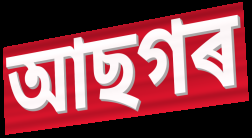
আছগৰ